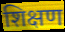
शिक्षण